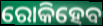
ରୋକିହେବ